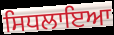
ਸਿਧਲਾਇਆ